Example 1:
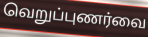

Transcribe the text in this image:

வெறுப்புணர்வை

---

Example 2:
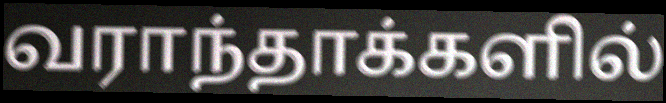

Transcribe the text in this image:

வராந்தாக்களில்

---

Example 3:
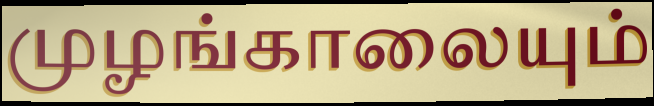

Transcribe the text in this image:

முழங்காலையும்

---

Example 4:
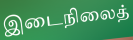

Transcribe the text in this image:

இடைநிலைத்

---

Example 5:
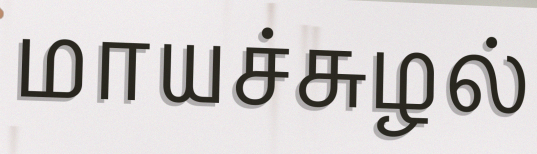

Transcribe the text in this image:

மாயச்சுழல்